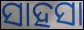
ସାହସା